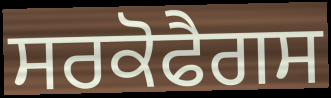
ਸਰਕੋਫੈਗਸ